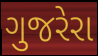
ગુજરેરા